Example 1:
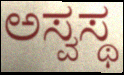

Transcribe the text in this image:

ಅಸ್ವಸ್ಥ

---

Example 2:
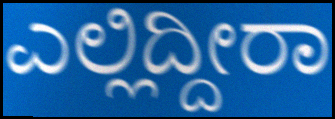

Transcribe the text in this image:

ಎಲ್ಲಿದ್ದೀರಾ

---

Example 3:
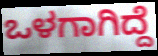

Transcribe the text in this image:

ಒಳಗಾಗಿದ್ದೆ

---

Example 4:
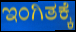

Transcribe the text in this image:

ಇಂಗಿತಕ್ಕೆ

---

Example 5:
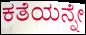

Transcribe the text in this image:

ಕತೆಯನ್ನೇ